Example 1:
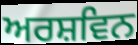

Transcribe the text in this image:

ਅਰਸ਼ਵਿਨ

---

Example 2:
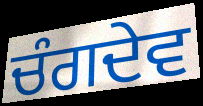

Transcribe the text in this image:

ਚੰਗਦੇਵ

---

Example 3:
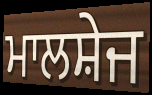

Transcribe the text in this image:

ਮਾਲਸ਼ੇਜ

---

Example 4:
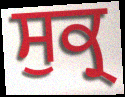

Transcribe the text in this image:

ਸੁਕ੍ਰ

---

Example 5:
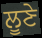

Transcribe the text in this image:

ਲੂਣੇ